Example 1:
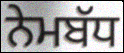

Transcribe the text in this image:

ਨੇਮਬੱਧ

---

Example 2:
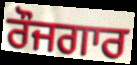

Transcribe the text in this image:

ਰੌਜਗਾਰ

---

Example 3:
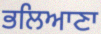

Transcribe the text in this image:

ਭਲਿਆਣਾ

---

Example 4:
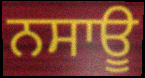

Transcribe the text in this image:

ਨਸਾਊ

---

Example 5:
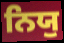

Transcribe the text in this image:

ਨਿਯੁ